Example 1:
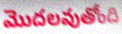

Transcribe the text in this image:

మొదలవుతోంది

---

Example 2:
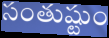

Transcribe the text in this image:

సంతుష్టుం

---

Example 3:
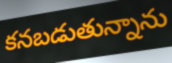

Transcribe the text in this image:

కనబడుతున్నాను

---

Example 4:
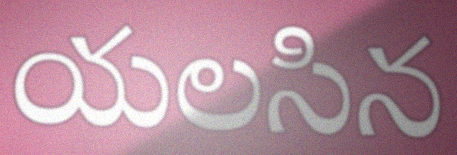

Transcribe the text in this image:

యలసిన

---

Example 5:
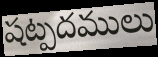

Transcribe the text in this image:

షట్పదములు